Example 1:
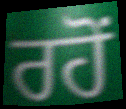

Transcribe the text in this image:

ਰਹੋਂ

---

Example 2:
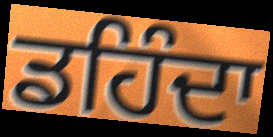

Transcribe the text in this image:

ਡਹਿੰਦਾ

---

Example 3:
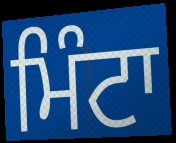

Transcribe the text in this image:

ਮਿੰਟਾ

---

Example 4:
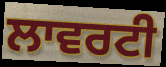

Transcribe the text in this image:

ਲਾਵਰਟੀ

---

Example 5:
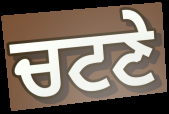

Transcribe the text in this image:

ਚਟਣੇ